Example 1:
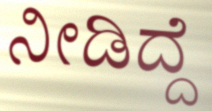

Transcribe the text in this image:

ನೀಡಿದ್ದೆ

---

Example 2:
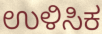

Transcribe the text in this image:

ಉಳಿಸಿಕ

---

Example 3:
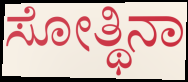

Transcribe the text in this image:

ಸೋತ್ಥಿನಾ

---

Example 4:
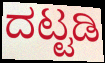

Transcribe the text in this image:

ದಟ್ಟಡಿ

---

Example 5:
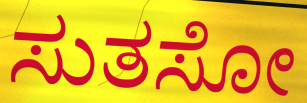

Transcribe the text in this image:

ಸುತಸೋ